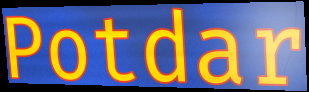
Potdar